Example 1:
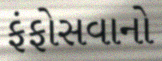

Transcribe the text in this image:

ફંફોસવાનો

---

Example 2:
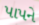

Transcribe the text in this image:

પાપને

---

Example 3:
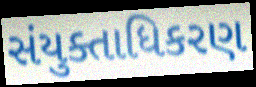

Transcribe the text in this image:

સંયુક્તાધિકરણ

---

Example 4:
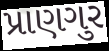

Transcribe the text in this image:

પ્રાણગુર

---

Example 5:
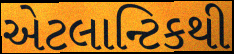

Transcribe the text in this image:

એટલાન્ટિકથી